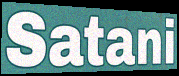
Satani